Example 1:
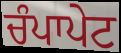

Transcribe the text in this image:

ਚੰਪਾਪੇਟ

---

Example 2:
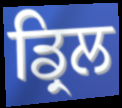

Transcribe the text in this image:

ਡ੍ਰਿਲ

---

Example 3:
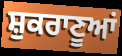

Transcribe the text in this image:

ਸ਼ੁਕਰਾਣੂਆਂ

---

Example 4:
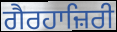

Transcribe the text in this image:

ਗੈਰਹਾਜ਼ਿਰੀ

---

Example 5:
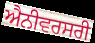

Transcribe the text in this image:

ਐਨੀਵਰਸਰੀ